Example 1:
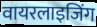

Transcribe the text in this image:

वायरलाइजिंग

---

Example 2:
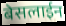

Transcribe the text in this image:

बेसलाईन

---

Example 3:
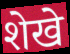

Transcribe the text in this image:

शेखे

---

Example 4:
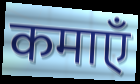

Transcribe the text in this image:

कमाएँ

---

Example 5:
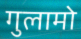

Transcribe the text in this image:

गुलामो